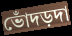
ভোঁদড়দা